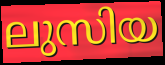
ലുസിയ